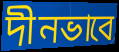
দীনভাবে